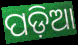
ପଡ଼ିଆ